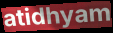
atidhyam